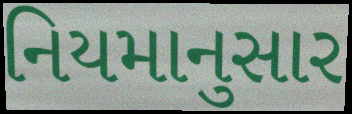
નિયમાનુસાર